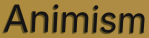
Animism